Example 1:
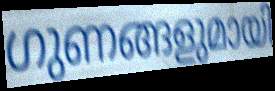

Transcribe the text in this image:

ഗുണങ്ങളുമായി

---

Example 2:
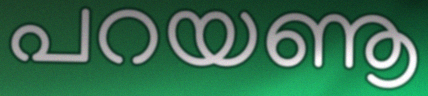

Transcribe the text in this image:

പറയണൂ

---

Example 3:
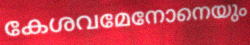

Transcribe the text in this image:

കേശവമേനോനെയും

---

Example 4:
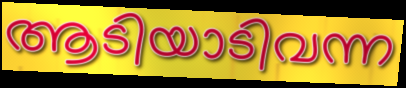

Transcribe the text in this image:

ആടിയാടിവന്ന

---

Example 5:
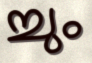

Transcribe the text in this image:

ച്ചും